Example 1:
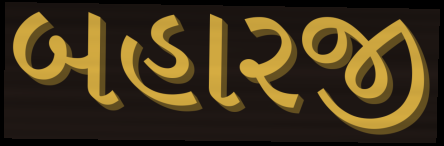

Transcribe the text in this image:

બહારજી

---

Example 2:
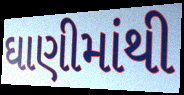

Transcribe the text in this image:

ઘાણીમાંથી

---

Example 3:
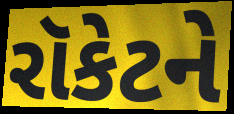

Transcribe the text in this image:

રૉકેટને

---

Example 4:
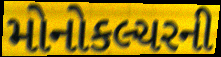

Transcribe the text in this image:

મોનોકલ્ચરની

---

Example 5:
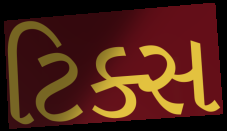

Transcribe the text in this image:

ટિક્સ